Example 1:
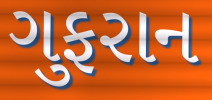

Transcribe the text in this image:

ગુફરાન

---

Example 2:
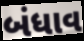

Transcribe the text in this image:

બંધાવ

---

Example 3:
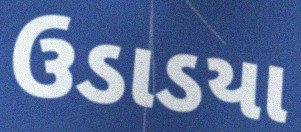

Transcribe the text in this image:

ઉડાડયા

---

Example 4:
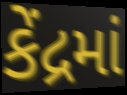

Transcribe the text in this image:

કેંદ્રમાં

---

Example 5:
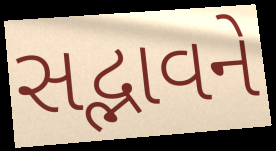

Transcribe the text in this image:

સદ્ભાવને